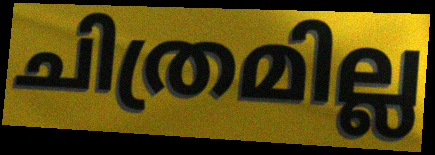
ചിത്രമില്ല